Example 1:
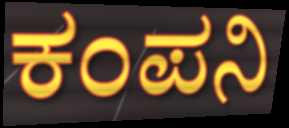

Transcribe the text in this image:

ಕಂಪನಿ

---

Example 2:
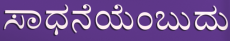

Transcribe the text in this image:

ಸಾಧನೆಯೆಂಬುದು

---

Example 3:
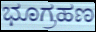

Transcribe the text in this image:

ಭೂಗ್ರಹಣ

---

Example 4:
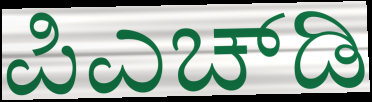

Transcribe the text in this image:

ಪಿಎಚ್‌ಡಿ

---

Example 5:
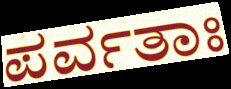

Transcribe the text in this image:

ಪರ್ವತಾಃ